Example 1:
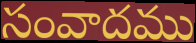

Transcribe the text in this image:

సంవాదము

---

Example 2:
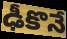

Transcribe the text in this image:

ఢీకొనే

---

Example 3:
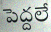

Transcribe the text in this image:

పెద్దలే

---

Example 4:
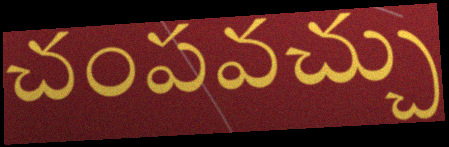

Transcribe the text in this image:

చంపవచ్చు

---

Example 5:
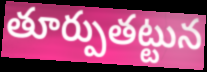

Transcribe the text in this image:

తూర్పుతట్టున